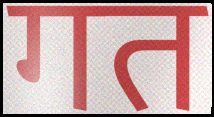
गत